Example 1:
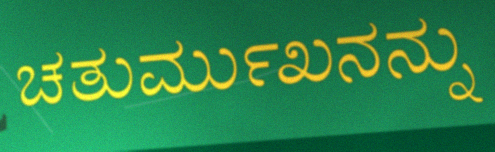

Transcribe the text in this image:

ಚತುರ್ಮುಖನನ್ನು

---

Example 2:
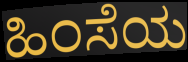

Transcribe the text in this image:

ಹಿಂಸೆಯ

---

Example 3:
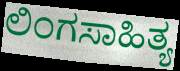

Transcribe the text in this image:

ಲಿಂಗಸಾಹಿತ್ಯ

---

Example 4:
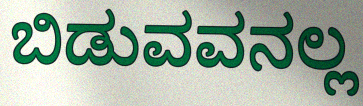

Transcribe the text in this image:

ಬಿಡುವವನಲ್ಲ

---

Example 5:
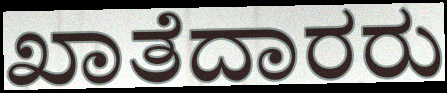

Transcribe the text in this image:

ಖಾತೆದಾರರು